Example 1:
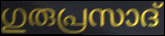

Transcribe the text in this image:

ഗുരുപ്രസാദ്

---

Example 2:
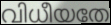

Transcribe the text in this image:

വിധീയതേ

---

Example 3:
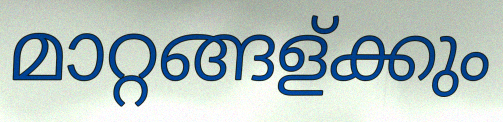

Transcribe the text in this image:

മാറ്റങ്ങള്ക്കും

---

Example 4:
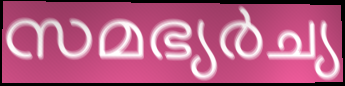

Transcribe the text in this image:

സമഭ്യർച്യ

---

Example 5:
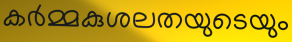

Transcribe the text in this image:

കർമ്മകുശലതയുടെയും